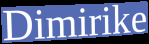
Dimirike